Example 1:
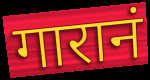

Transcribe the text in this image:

गारानं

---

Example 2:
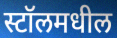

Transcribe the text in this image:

स्टॉलमधील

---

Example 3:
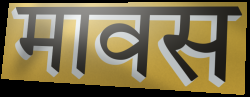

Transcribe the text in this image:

मावस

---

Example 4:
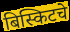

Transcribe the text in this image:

बिस्किटचे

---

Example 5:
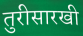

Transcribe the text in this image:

तुरीसारखी